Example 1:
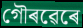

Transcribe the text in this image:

গৌৰৱেৰে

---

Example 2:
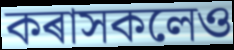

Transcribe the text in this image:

কৰাসকলেও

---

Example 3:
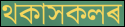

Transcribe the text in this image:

থকাসকলৰ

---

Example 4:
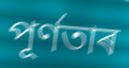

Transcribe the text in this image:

পূৰ্ণতাৰ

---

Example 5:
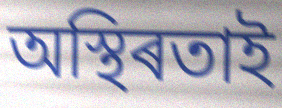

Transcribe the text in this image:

অস্থিৰতাই